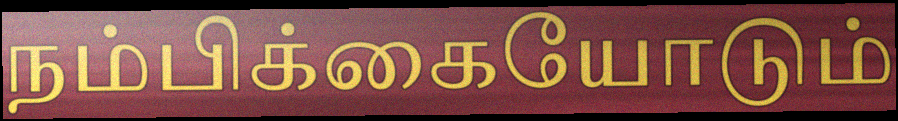
நம்பிக்கையோடும்